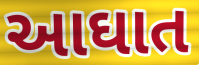
આઘાત